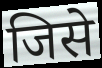
जिसे